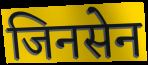
जिनसेन